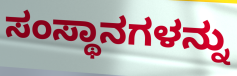
ಸಂಸ್ಥಾನಗಳನ್ನು